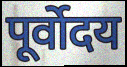
पूर्वोदय